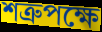
শত্রুপক্ষে